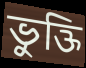
ভুক্তি